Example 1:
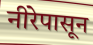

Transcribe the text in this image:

नीरेपासून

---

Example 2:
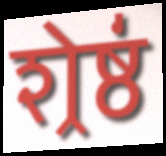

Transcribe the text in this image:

श्रेष्ठं॑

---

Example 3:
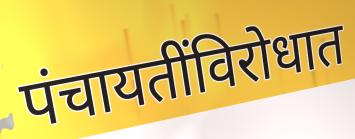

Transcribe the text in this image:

पंचायतींविरोधात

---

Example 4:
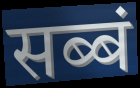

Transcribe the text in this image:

सब्बं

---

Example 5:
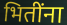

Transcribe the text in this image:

भितींना